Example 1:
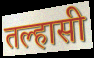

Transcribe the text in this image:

तल्हासी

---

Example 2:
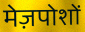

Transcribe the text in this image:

मेज़पोशों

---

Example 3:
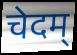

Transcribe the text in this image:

चेदम्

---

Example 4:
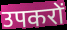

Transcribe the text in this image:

उपकरों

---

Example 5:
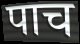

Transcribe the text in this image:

पाच